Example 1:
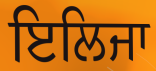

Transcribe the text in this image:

ਇਲਿਜਾ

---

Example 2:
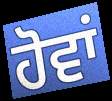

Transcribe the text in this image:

ਹੋਵਾਂ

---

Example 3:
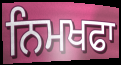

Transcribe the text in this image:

ਨਿਮਖਫਾ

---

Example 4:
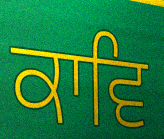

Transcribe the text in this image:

ਕਾਵਿ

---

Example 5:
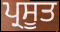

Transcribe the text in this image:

ਪ੍ਰਸੂਤ